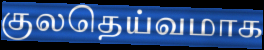
குலதெய்வமாக